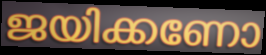
ജയിക്കണോ